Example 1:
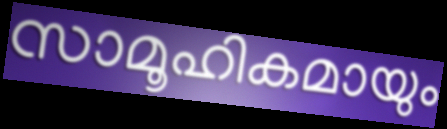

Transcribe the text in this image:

സാമൂഹികമായും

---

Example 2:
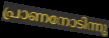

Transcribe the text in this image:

പ്രാണനോടിന്നു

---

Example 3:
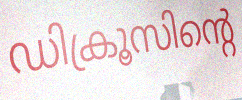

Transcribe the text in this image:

ഡിക്രൂസിന്റെ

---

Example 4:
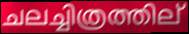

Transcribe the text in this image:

ചലച്ചിത്രത്തില്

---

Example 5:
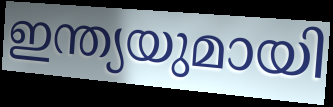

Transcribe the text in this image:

ഇന്ത്യയുമായി